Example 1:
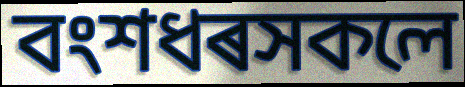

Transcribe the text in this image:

বংশধৰসকলে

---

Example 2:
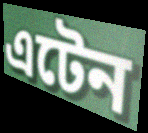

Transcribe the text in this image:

এটেন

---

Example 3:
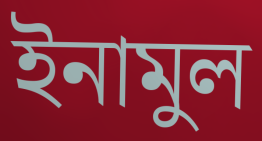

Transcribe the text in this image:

ইনামুল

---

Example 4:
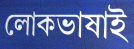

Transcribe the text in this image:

লোকভাষাই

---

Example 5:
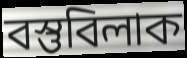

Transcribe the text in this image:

বস্তুবিলাক